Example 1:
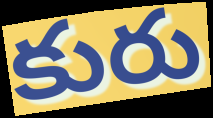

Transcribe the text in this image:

కురు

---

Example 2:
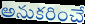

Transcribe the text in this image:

అనుకరించే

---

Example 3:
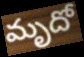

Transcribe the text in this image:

మృదో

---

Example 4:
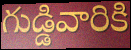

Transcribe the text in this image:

గుడ్డివారికి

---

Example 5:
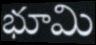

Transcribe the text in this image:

భూమి